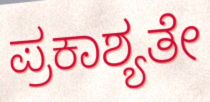
ಪ್ರಕಾಶ್ಯತೇ